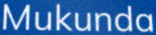
Mukunda